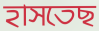
হাসতেছ